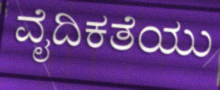
ವೈದಿಕತೆಯು